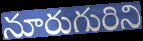
నూరుగురిని